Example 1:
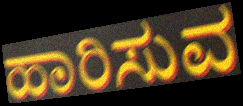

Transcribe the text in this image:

ಹಾರಿಸುವ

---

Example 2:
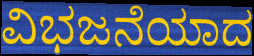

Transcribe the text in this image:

ವಿಭಜನೆಯಾದ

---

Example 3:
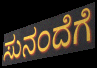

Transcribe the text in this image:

ಸುನಂದೆಗೆ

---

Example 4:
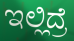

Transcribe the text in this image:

ಇಲ್ಲಿದ್ರೆ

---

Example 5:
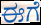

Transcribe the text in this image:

ಈಗೆ